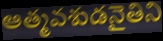
ఆత్మవశుడనైతిని